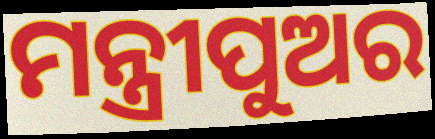
ମନ୍ତ୍ରୀପୁଅର